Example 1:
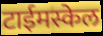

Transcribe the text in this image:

टाईमस्केल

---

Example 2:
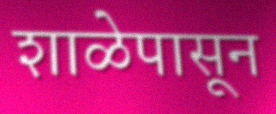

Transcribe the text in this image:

शाळेपासून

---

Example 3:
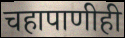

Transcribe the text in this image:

चहापाणीही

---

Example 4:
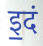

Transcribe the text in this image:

इ॒दं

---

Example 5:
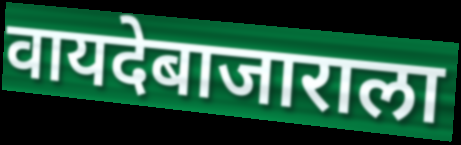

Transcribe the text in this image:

वायदेबाजाराला